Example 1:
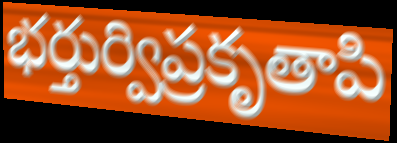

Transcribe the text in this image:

భర్తుర్విప్రకృతాపి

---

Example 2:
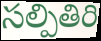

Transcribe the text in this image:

సల్పితిరి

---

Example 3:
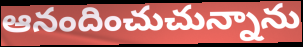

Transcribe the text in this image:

ఆనందించుచున్నాను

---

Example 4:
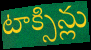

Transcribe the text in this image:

టాక్సిన్లు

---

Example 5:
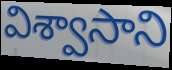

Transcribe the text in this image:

విశ్వాసాని